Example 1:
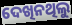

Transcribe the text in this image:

ଦେଖିନଥିଲୁ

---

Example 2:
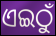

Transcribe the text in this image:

ଏଇଠୁଁ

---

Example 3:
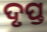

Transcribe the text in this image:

ଦୃପ୍ତ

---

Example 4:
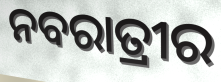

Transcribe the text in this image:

ନବରାତ୍ରୀର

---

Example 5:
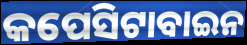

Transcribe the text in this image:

କପେସିଟାବାଇନ